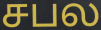
சபல